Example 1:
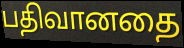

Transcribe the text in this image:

பதிவானதை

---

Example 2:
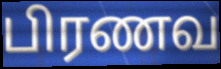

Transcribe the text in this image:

பிரணவ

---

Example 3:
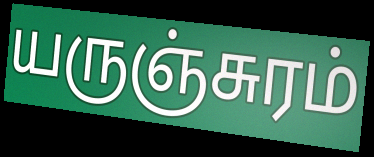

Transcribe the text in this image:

யருஞ்சுரம்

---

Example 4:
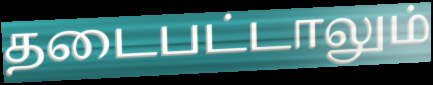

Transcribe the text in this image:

தடைபட்டாலும்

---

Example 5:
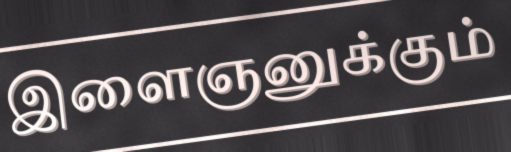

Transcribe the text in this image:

இளைஞனுக்கும்